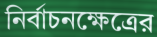
নির্বাচনক্ষেত্রের